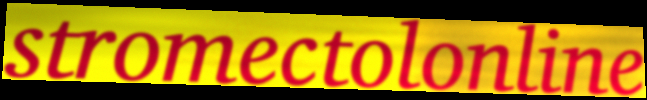
stromectolonline